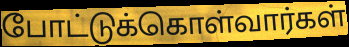
போட்டுக்கொள்வார்கள்